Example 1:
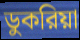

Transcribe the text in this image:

ডুকরিয়া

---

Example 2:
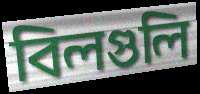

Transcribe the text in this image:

বিলগুলি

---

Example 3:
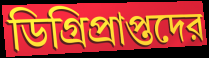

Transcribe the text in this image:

ডিগ্রিপ্রাপ্তদের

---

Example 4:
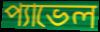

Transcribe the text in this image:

প্যাভেল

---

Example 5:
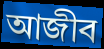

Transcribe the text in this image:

আজীব